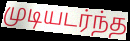
முடியடர்ந்த